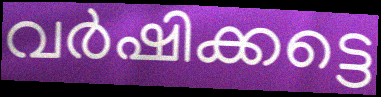
വർഷിക്കട്ടെ